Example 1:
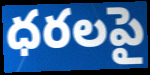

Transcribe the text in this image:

ధరలపై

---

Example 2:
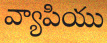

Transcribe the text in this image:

వ్యాపియు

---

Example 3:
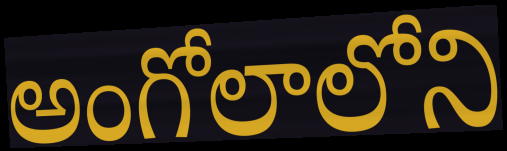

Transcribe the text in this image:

అంగోలాలోని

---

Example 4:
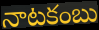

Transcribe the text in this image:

నాటకంబు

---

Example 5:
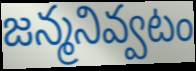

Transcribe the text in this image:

జన్మనివ్వటం